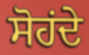
ਸੋਹਂਦੇ